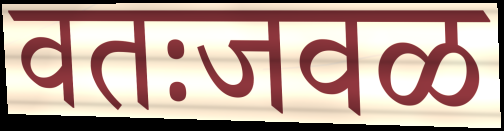
वतःजवळ